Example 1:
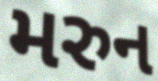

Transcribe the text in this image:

મરુન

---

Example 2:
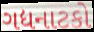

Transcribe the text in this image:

ગદ્યનાટકો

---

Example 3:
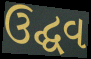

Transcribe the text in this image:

ઉદ્ઘવ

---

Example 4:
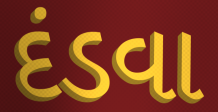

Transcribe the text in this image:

દંડવા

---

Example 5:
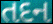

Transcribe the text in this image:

તદન